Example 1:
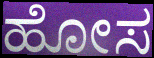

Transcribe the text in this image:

ಹೋಸ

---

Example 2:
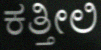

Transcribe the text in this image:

ಕತ್ತೀಲಿ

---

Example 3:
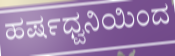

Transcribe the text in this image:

ಹರ್ಷಧ್ವನಿಯಿಂದ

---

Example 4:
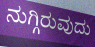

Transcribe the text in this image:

ನುಗ್ಗಿರುವುದು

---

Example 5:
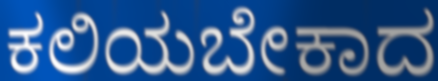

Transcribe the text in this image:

ಕಲಿಯಬೇಕಾದ